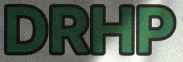
DRHP